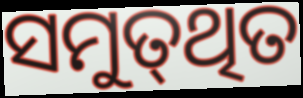
ସମୁତ୍‌ଥିତ